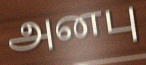
அனபு